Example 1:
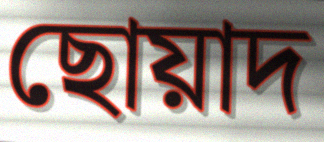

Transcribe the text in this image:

ছোয়াদ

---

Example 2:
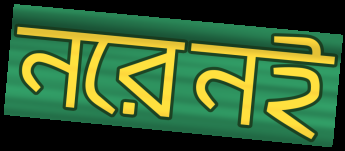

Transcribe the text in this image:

নরেনই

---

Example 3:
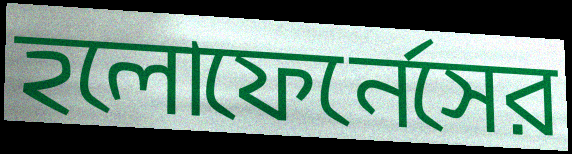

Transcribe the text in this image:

হলোফের্নেসের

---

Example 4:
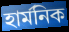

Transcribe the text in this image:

হার্মনিক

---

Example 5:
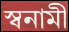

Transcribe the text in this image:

স্বনামী